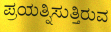
ಪ್ರಯತ್ನಿಸುತ್ತಿರುವ